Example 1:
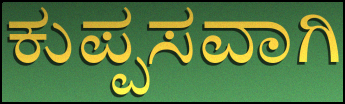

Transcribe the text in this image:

ಕುಪ್ಪಸವಾಗಿ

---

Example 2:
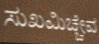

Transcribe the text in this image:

ಸುಖಮಿಚ್ಚೇವ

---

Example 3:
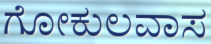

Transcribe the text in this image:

ಗೋಕುಲವಾಸ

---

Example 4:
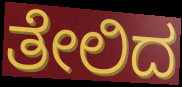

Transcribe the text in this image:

ತೇಲಿದ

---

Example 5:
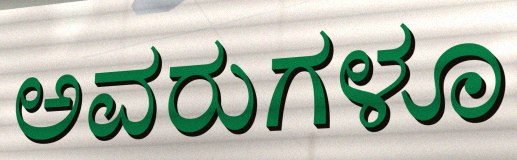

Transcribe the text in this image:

ಅವರುಗಳೂ